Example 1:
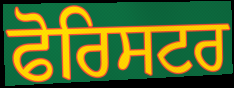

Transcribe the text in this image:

ਫੋਰਿਸਟਰ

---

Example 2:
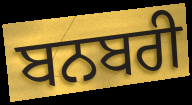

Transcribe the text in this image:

ਬਨਬਰੀ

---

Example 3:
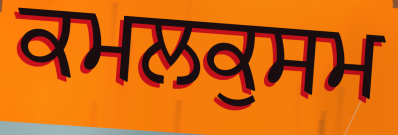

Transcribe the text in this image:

ਕਮਲਕੁਸਮ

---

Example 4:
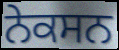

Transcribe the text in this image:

ਨੇਕਸਨ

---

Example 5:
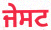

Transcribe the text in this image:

ਜੇਸਟ